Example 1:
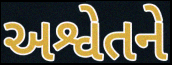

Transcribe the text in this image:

અશ્વેતને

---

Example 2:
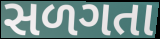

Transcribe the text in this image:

સળગતા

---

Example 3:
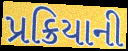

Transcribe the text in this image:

પ્રક્રિયાની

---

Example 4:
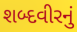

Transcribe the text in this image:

શબ્દવીરનું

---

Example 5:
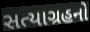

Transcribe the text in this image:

સત્યાગ્રહનો